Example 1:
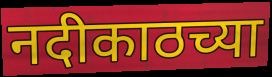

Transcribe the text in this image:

नदीकाठच्या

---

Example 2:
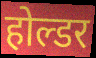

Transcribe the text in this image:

होल्डर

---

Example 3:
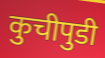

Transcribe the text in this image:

कुचीपुडी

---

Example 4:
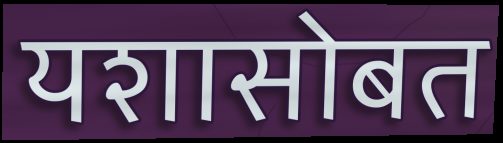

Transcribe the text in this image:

यशासोबत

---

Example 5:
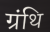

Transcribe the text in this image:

ग्रंथि